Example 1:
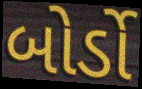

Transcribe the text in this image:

બોર્ડો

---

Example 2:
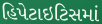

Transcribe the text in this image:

હિપેટાઇટિસમાં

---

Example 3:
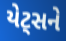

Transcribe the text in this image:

યેટ્સને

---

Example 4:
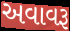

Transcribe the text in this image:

અવાવરૂ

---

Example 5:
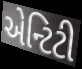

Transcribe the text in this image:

એન્ટિટી